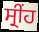
ਸ੍ਰੀਂਹ